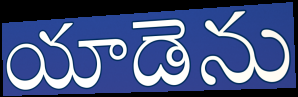
యాడెను